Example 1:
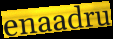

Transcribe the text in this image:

enaadru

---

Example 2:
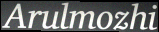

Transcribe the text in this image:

Arulmozhi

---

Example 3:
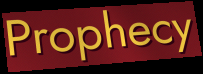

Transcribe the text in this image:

Prophecy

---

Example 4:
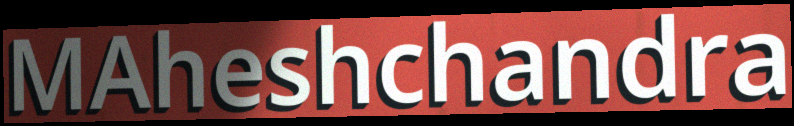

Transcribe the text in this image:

MAheshchandra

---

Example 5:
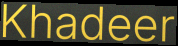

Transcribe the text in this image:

Khadeer